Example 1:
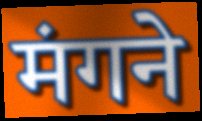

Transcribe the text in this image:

मंगने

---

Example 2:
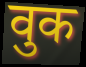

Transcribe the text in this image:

वुक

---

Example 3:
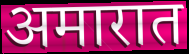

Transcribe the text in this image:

अमारात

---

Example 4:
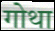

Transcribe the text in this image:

गोथा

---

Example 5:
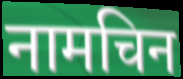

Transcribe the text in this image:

नामचिन